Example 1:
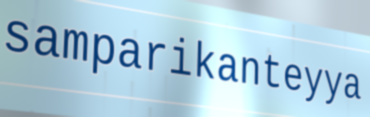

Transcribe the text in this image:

samparikanteyya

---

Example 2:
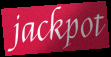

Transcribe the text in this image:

jackpot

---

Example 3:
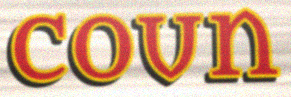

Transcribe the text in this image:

coun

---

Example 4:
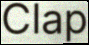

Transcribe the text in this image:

Clap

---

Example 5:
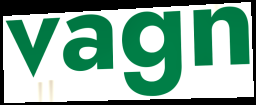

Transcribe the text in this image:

vagn